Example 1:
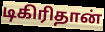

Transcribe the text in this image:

டிகிரிதான்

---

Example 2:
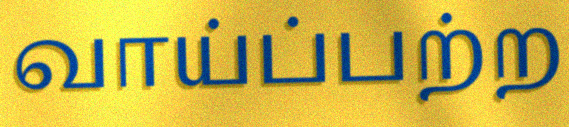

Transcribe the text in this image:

வாய்ப்பற்ற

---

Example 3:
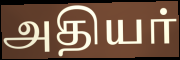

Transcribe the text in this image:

அதியர்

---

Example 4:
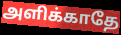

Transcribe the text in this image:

அளிக்காதே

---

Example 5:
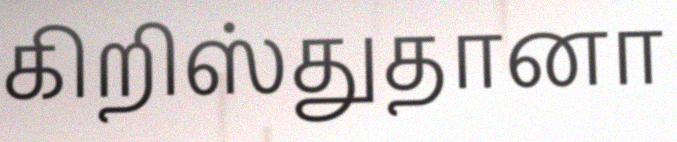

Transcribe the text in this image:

கிறிஸ்துதானா